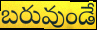
బరువుండే